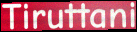
Tiruttani